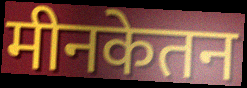
मीनकेतन